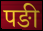
पङी